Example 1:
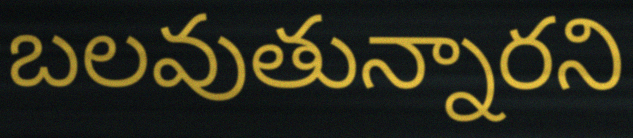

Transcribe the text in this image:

బలవుతున్నారని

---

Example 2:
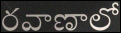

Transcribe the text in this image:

రవాణాలో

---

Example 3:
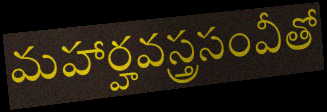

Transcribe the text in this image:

మహార్హవస్త్రసంవీతో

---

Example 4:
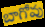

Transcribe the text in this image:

బాగోవు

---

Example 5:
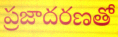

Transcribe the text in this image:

ప్రజాదరణతో